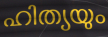
ഹിത്യയും